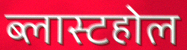
ब्लास्टहोल